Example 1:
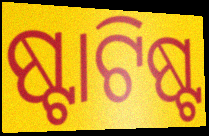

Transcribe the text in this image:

ଷ୍ଟାଟିଷ୍ଟ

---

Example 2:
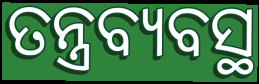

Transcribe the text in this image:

ତନ୍ତ୍ରବ୍ୟବସ୍ଥ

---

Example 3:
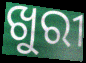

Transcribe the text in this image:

ଖୁରୀ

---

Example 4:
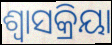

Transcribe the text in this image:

ଶ୍ବାସକ୍ରିୟା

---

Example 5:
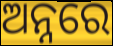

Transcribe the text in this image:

ଅନ୍ନରେ